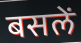
बसलें